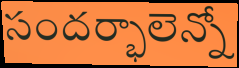
సందర్భాలెన్నో